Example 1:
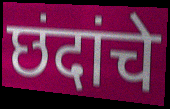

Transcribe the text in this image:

छंदांचे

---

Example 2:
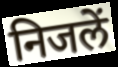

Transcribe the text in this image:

निजलें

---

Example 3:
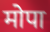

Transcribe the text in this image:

मोपा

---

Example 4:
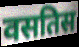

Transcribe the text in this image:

वसतिस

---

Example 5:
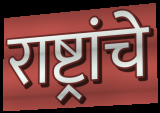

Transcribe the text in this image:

राष्ट्रांचे